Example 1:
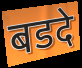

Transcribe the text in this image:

बडदे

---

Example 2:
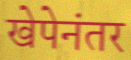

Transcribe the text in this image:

खेपेनंतर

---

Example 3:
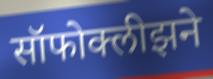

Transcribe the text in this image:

सॉफोक्लीझने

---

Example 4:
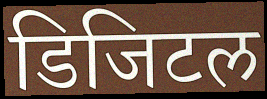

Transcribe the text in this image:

डिजिटल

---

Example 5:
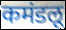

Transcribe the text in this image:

कमंडलू